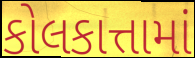
કોલકાત્તામાં